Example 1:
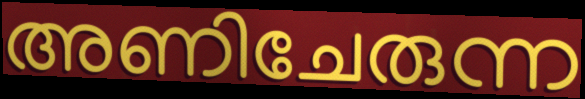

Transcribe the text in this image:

അണിചേരുന്ന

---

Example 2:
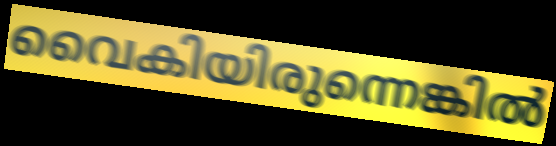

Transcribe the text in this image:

വൈകിയിരുന്നെങ്കിൽ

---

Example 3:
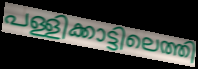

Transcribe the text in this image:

പള്ളിക്കാട്ടിലെത്തി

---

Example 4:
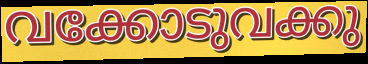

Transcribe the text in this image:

വക്കോടുവക്കു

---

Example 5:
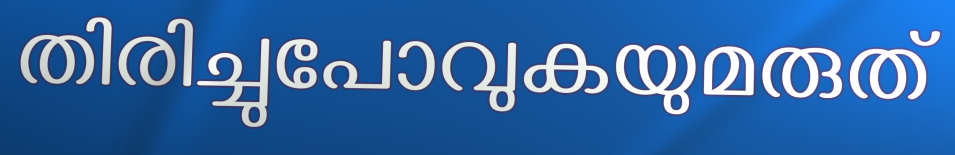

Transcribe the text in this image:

തിരിച്ചുപോവുകയുമരുത്